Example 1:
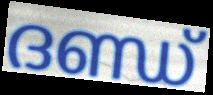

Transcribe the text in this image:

ദണ്ഡ്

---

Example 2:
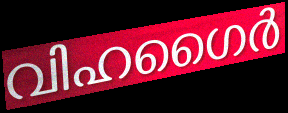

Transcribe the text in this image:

വിഹഗൈർ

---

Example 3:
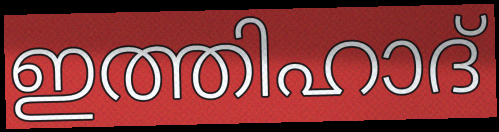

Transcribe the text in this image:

ഇത്തിഹാദ്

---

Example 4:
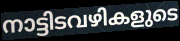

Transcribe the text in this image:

നാട്ടിടവഴികളുടെ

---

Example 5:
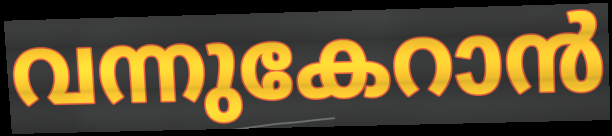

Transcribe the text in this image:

വന്നുകേറാൻ